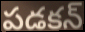
పడకన్